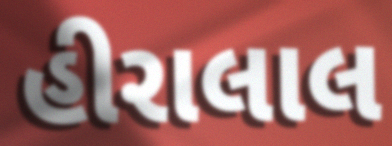
હીરાલાલ